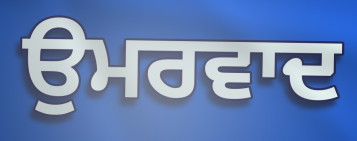
ਉਮਰਵਾਦ